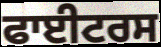
ਫਾਈਟਰਸ